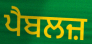
ਪੈਬਲਜ਼